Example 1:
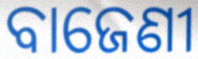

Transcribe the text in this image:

ବାଜେଣୀ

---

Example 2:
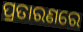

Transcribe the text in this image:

ପ୍ରତାରଣରେ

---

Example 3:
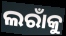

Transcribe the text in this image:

ଲରାଁକୁ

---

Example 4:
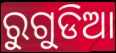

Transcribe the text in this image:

ରୁଗୁଡିଆ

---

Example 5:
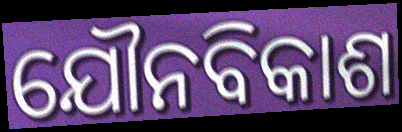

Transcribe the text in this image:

ଯୌନବିକାଶ